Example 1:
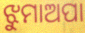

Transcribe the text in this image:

ଝୁମାଅପା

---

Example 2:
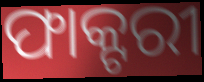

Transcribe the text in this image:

ଫାକ୍ଟରୀ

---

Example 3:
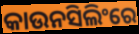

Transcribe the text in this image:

କାଉନସିଲିଂରେ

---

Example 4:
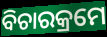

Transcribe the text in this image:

ବିଚାରକ୍ରମେ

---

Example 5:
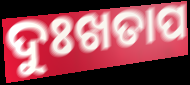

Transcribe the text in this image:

ଦୁଃଖତାପ